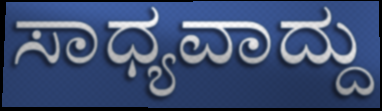
ಸಾಧ್ಯವಾದ್ದು